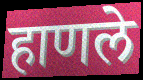
हाणले